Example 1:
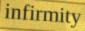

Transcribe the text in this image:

infirmity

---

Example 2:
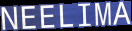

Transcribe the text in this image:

NEELIMA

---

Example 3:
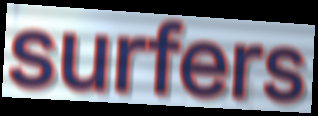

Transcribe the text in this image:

surfers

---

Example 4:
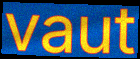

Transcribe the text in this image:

vaut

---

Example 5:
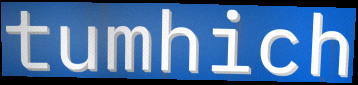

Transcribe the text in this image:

tumhich